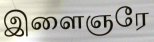
இளைஞரே